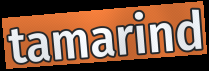
tamarind